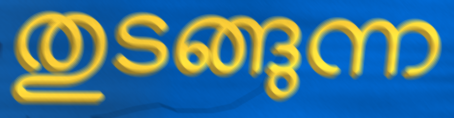
തുടങ്ങുന്ന